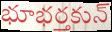
భూభర్తకున్